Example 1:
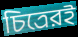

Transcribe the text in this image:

চিত্রেরই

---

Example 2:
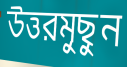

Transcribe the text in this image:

উত্তরমুছুন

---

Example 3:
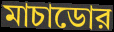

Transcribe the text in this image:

মাচাডোর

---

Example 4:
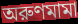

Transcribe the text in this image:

অরুণমামা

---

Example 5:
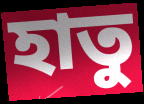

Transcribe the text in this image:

হাতু